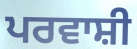
ਪਰਵਾਸ਼ੀ